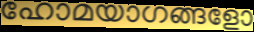
ഹോമയാഗങ്ങളോ